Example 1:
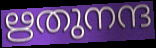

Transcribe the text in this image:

ഋതുനന്ദ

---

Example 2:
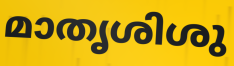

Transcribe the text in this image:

മാതൃശിശു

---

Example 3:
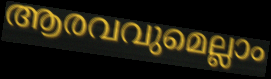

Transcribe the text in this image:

ആരവവുമെല്ലാം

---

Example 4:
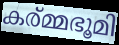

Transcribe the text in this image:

കര്മ്മഭൂമി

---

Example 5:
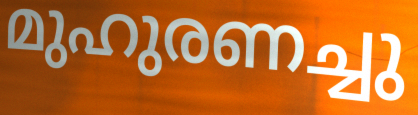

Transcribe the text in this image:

മുഹുരണച്ചു